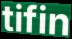
tifin